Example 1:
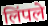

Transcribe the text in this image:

लिंपले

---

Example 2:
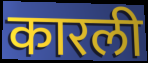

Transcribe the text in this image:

कारली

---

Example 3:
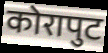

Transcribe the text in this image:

कोरापुट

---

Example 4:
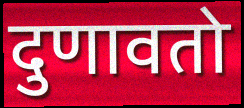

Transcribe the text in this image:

दुणावतो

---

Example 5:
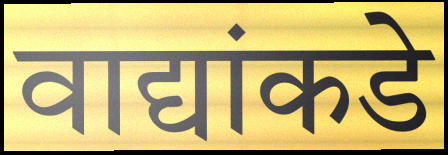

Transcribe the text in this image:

वाद्यांकडे